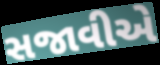
સજાવીએ